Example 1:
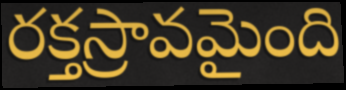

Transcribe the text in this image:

రక్తస్రావమైంది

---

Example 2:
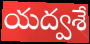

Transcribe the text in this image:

యద్వశే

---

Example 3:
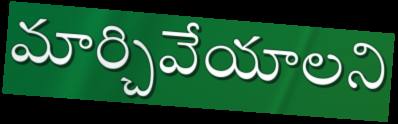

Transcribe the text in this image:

మార్చివేయాలని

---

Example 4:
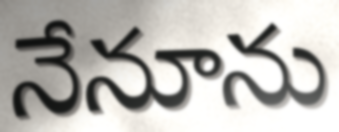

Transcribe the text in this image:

నేనూను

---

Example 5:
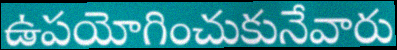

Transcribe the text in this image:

ఉపయోగించుకునేవారు